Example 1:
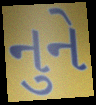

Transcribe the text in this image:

નુને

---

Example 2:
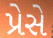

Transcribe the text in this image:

પ્રેસે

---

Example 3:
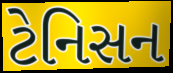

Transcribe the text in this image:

ટેનિસન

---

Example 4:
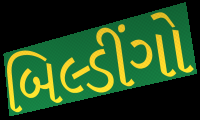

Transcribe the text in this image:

બિલ્ડીંગો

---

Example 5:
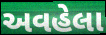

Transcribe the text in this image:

અવહેલા